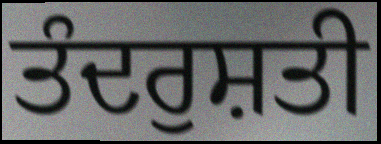
ਤੰਦਰੁਸ਼ਤੀ